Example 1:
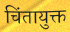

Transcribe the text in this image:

चिंतायुक्त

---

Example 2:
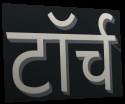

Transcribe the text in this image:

टॉर्च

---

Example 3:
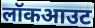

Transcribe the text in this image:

लॉकआउट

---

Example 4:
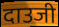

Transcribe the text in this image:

दाउजी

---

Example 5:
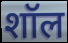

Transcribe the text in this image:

शॉल